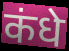
कंधे